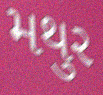
મથુર